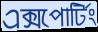
এক্সপোর্টিং